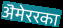
ऄमेररका